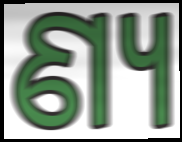
ଣ୍ଯ